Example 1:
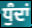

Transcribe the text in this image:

ਧੁੰਦਾਂ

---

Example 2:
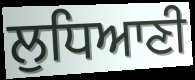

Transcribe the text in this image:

ਲੁਧਿਆਣੀ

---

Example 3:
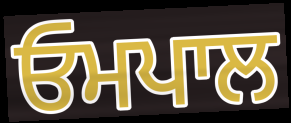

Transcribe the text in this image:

ਓਮਪਾਲ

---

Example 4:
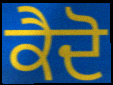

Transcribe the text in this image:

ਕੈਦੋ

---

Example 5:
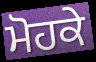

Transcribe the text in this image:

ਮੋਹਕੇ